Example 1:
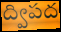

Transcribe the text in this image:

ద్విపద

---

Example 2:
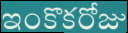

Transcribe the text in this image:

ఇంకొకరోజు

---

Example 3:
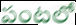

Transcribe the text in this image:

పంటలో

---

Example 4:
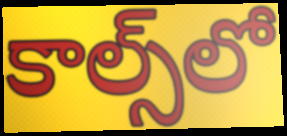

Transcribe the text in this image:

కాల్స్‌లో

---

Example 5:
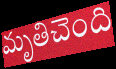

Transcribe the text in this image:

మృతిచెంది